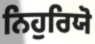
ਨਿਹੁਰਿਯੋ